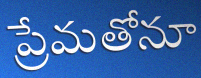
ప్రేమతోనూ